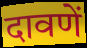
दावणें